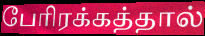
பேரிரக்கத்தால்